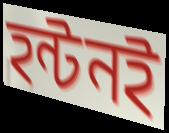
হন্টনই